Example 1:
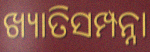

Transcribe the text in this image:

ଖ୍ୟାତିସମ୍ପନ୍ନା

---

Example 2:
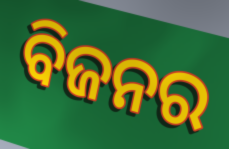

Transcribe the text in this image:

ବିଜନର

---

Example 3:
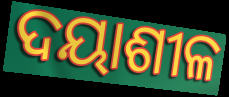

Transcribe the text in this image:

ଦୟାଶୀଳ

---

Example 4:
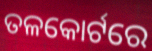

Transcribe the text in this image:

ତଳକୋର୍ଟରେ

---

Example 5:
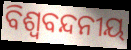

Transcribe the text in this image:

ବିଶ୍ୱବନ୍ଦନୀୟ